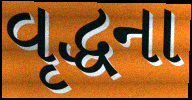
વૃદ્ધના